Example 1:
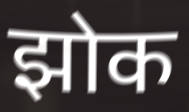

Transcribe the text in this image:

झोक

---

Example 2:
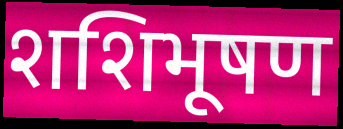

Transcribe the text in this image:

शशिभूषण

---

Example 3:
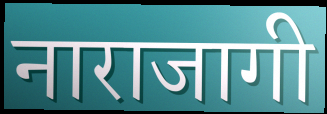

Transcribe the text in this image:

नाराजागी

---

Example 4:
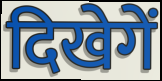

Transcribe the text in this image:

दिखेगें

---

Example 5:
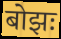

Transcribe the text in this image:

बोझः